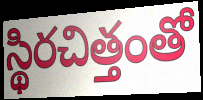
స్థిరచిత్తంతో